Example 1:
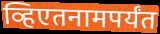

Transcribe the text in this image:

व्हिएतनामपर्यंत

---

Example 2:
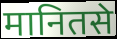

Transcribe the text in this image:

मानितसे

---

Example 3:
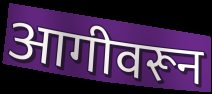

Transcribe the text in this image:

आगीवरून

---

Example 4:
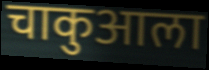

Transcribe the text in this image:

चाकुआला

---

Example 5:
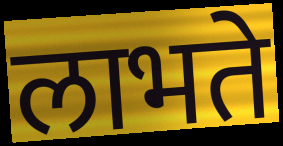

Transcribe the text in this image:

लाभते